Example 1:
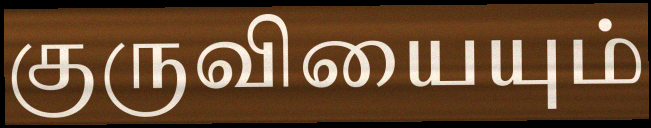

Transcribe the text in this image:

குருவியையும்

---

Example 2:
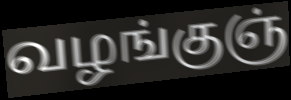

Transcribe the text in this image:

வழங்குஞ்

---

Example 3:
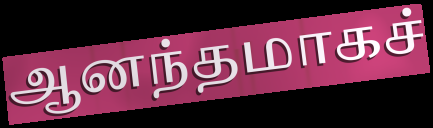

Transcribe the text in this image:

ஆனந்தமாகச்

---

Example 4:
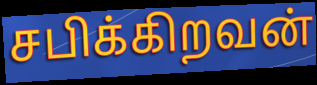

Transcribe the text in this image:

சபிக்கிறவன்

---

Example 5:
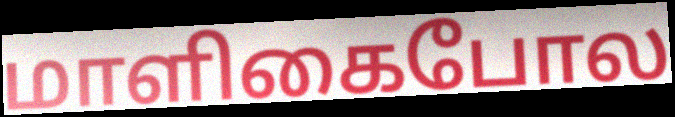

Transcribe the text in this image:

மாளிகைபோல